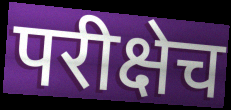
परीक्षेच